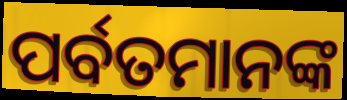
ପର୍ବତମାନଙ୍କ